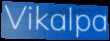
Vikalpa